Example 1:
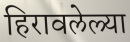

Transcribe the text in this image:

हिरावलेल्या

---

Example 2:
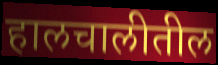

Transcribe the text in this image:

हालचालीतील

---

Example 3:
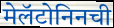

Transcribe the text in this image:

मेलॅटोनिनची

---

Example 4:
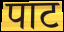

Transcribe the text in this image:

पाट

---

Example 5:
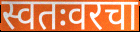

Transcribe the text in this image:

स्वतःवरचा